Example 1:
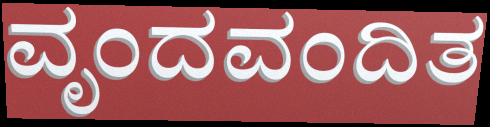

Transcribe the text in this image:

ವೃಂದವಂದಿತ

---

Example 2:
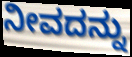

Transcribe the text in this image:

ನೀವದನ್ನು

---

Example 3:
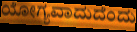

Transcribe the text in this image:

ಯೋಗ್ಯವಾದುದೆಂದು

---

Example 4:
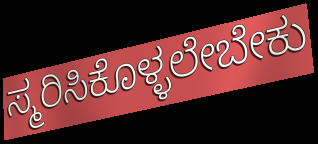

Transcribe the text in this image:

ಸ್ಮರಿಸಿಕೊಳ್ಳಲೇಬೇಕು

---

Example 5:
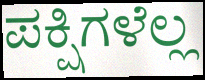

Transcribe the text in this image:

ಪಕ್ಷಿಗಳೆಲ್ಲ